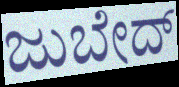
ಜುಬೇದ್